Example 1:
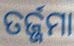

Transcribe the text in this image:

ତର୍ଜ୍ଜମା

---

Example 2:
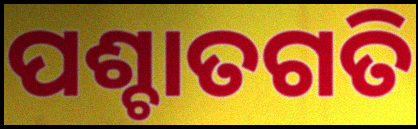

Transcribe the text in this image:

ପଶ୍ଚାତଗତି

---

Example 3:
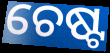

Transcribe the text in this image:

ଚେଷ୍ଟ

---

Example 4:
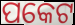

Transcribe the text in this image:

ପକେଟ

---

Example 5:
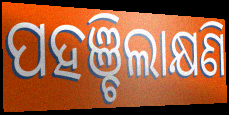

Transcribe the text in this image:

ପହଞ୍ଚିଲାକ୍ଷଣି